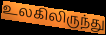
உலகிலிருந்து